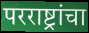
परराष्ट्रांचा